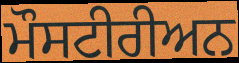
ਮੌਸਟੀਰੀਅਨ